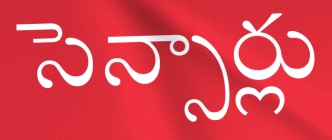
సెన్సార్లు